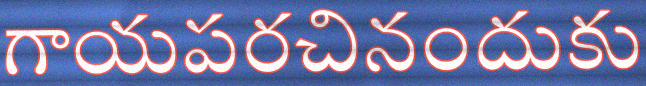
గాయపరచినందుకు